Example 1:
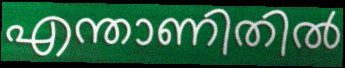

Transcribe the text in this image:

എന്താണിതിൽ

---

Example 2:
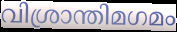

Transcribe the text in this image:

വിശ്രാന്തിമഗമം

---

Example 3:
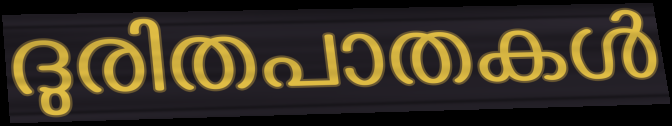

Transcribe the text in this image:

ദുരിതപാതകൾ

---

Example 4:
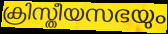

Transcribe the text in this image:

ക്രിസ്തീയസഭയും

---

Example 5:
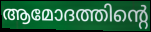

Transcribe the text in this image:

ആമോദത്തിന്റെ